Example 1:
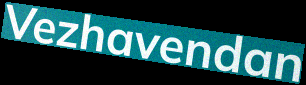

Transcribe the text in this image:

Vezhavendan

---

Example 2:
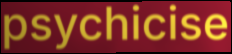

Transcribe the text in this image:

psychicise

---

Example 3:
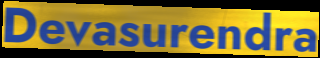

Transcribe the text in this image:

Devasurendra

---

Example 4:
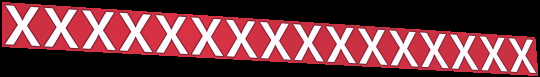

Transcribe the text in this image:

xxxxxxxxxxxxxxxx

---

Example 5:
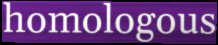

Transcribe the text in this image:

homologous